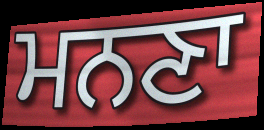
ਮਨਣਾ